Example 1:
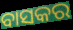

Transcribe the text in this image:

ବାସକର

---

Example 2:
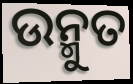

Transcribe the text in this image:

ଉନ୍ମୁତ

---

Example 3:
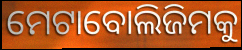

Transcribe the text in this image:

ମେଟାବୋଲିଜିମକୁ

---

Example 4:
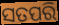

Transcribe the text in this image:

ସତପରି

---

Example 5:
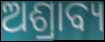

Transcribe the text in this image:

ଅଶ୍ରାବ୍ୟ